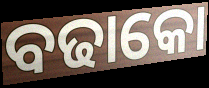
ବଢାକୋ